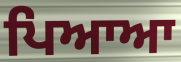
ਪਿਆਆ